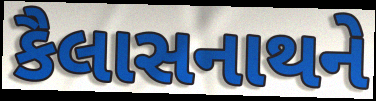
કૈલાસનાથને